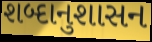
શબ્દાનુશાસન